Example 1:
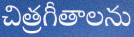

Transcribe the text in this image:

చిత్రగీతాలను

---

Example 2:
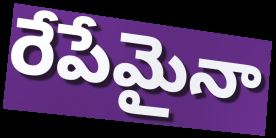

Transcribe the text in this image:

రేపేమైనా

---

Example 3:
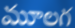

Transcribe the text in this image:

మూలగ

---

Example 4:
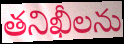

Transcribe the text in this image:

తనిఖీలను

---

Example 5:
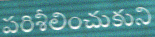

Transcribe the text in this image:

పరిశీలించుకుని